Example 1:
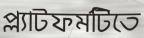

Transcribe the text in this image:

প্ল্যাটফর্মটিতে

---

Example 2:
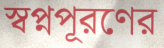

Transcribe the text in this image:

স্বপ্নপূরণের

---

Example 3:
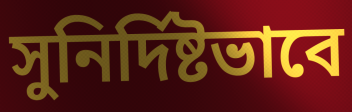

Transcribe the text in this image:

সুনির্দিষ্টভাবে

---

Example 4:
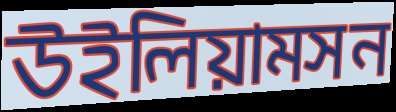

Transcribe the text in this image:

উইলিয়ামসন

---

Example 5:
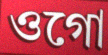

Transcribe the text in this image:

ওগো